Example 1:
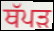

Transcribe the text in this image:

ਥੱਪੜ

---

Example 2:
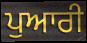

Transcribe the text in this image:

ਪੁਆਰੀ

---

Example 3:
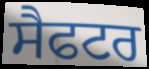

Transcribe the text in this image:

ਸੈਫਟਰ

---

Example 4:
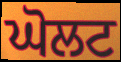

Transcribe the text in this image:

ਘੋਲਟ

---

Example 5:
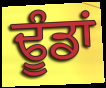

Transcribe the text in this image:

ਢੂੰਡਾਂ